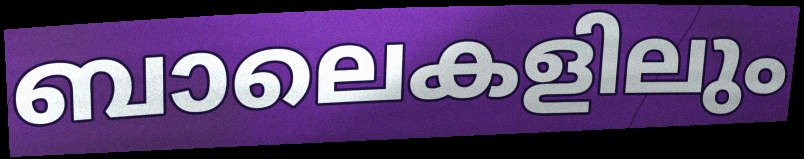
ബാലെകളിലും